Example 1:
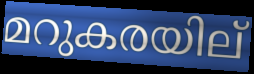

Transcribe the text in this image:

മറുകരയില്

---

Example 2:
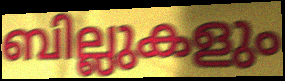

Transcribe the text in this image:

ബില്ലുകളും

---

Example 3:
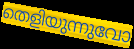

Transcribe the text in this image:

തെളിയുന്നുവോ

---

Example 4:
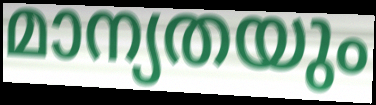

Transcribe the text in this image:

മാന്യതയും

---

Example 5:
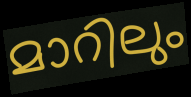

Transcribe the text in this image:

മാറിലും